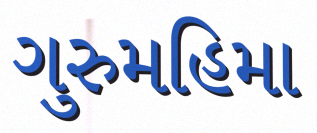
ગુરુમહિમા